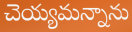
చెయ్యమన్నాను